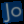
Jo